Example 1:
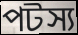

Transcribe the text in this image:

পটস্য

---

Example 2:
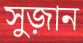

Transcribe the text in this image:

সুজ়ান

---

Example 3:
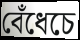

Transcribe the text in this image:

বেঁধেচে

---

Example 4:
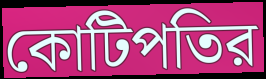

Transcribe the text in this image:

কোটিপতির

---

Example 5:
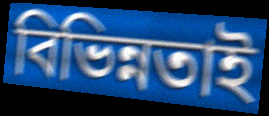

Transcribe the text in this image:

বিভিন্নতাই